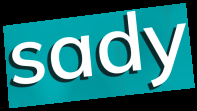
sady